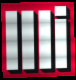
Illi